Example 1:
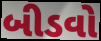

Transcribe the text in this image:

બીડવો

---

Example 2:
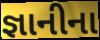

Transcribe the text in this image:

જ્ઞાનીના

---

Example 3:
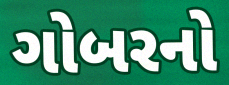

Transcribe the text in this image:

ગોબરનો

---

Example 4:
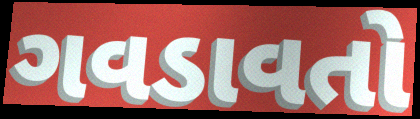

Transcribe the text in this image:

ગવડાવતો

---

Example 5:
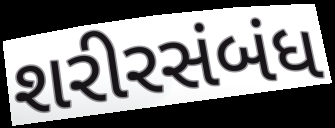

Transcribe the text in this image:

શરીરસંબંધ